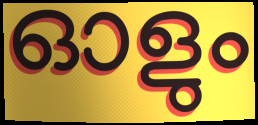
ഓളും